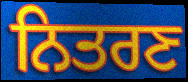
ਨਿਤਰਣ